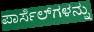
ಪಾರ್ಸೆಲ್‌ಗಳನ್ನು